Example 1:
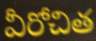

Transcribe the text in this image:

వీరోచిత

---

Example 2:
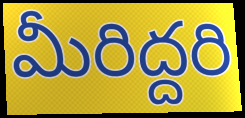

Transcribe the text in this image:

మీరిద్దరి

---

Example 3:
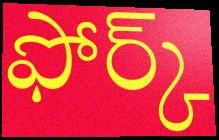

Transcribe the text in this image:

ఫోర్క్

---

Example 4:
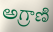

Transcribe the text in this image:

అగ్రాణి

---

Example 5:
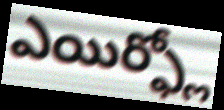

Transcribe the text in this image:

ఎయిర్ఫ్లో